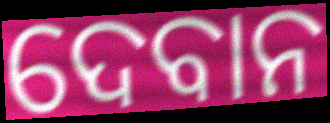
ଦେବାନ